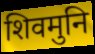
शिवमुनि